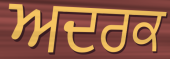
ਅਦਰਕ